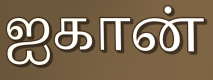
ஐகான்